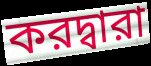
করদ্বারা